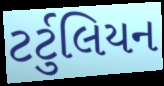
ટર્ટુલિયન